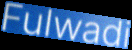
Fulwadi